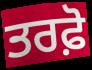
ਤਰਫ਼ੋ